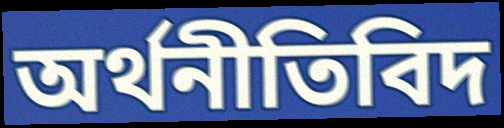
অর্থনীতিবিদ